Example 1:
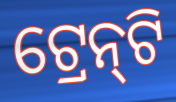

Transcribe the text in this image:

ଟ୍ରେନ୍‌ଟି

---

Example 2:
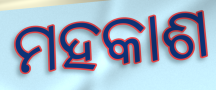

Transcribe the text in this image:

ମହକାଶ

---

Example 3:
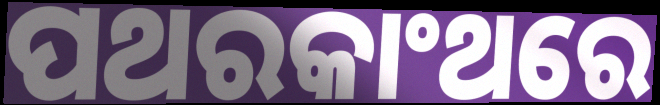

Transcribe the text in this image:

ପଥରକାଂଥରେ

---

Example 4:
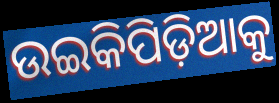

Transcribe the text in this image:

ଉଇକିପିଡ଼ିଆକୁ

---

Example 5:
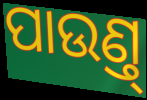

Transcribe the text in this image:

ପାଉଣ୍ତ୍